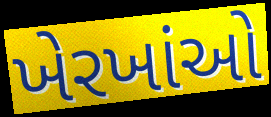
ખેરખાંઓ